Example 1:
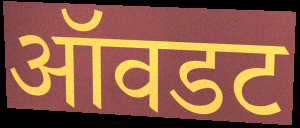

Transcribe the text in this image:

ऑवडट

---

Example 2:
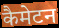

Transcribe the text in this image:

कैमेटन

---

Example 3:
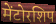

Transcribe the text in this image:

मेंटोरशिप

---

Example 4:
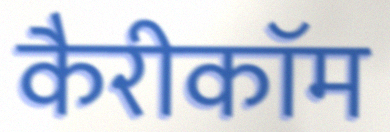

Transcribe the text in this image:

कैरीकॉम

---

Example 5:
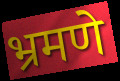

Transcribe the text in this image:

भ्रमणे